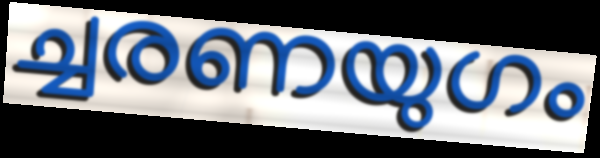
ച്ചരണയുഗം